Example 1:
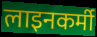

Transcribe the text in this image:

लाइनकर्मी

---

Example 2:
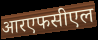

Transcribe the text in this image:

आरएफसीएल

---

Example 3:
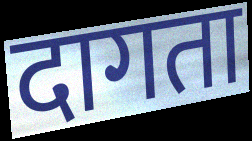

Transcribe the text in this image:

दागता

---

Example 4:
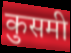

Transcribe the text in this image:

कुसमी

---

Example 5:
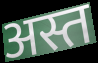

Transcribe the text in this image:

अस्त